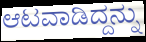
ಆಟವಾಡಿದ್ದನ್ನು